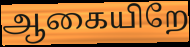
ஆகையிறே